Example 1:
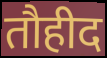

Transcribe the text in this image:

तौहीद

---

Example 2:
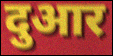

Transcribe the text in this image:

दुआर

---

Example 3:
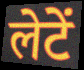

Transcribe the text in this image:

लेटें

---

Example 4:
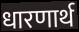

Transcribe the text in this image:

धारणार्थ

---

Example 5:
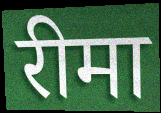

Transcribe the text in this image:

रीमा